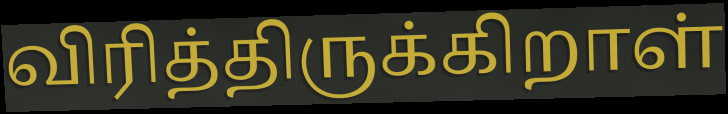
விரித்திருக்கிறாள்